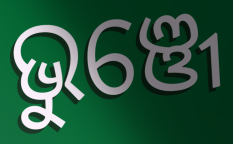
ଭୁଞ୍ଜେ